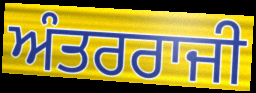
ਅੰਤਰਰਾਜੀ